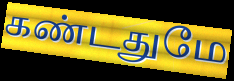
கண்டதுமே